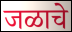
जळाचे